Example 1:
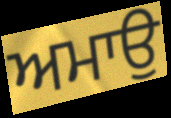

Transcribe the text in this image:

ਅਮਾਉ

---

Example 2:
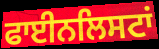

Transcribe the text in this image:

ਫਾਈਨਲਿਸਟਾਂ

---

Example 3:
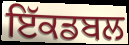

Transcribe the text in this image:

ਇੱਕਡਬਲ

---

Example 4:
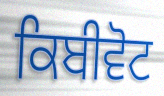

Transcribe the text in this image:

ਕਿਬੀਵੋਟ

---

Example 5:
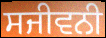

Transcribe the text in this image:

ਸਜੀਵਨੀ